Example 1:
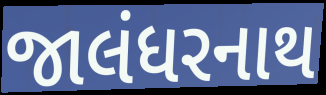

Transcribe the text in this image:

જાલંધરનાથ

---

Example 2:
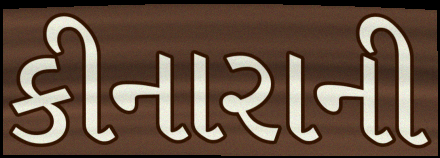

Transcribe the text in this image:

કીનારાની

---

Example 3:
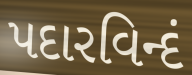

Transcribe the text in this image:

પદારવિન્દં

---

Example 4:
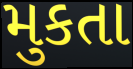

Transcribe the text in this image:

મુકતા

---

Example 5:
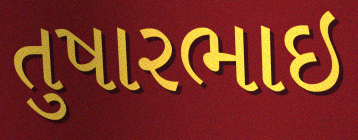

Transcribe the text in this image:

તુષારભાઇ